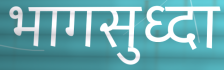
भागसुध्दा